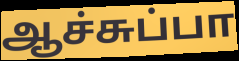
ஆச்சுப்பா